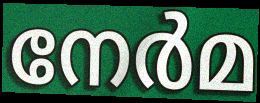
നേർമ